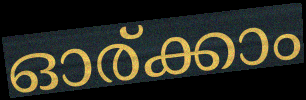
ഓര്ക്കാം